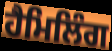
ਹੈਮਿਲਿੰਗ